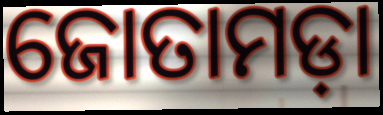
ଜୋତାମଡ଼ା